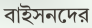
বাইসনদের